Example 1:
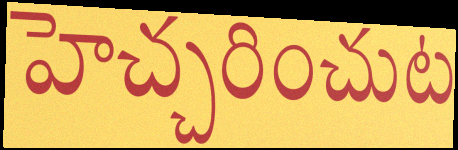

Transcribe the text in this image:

హెచ్చరించుట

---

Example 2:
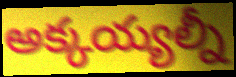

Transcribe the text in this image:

అక్కయ్యల్నీ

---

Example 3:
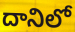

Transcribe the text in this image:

దానిలో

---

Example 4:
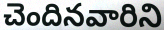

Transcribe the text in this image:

చెందినవారిని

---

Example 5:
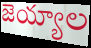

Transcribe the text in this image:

జెయ్యాల